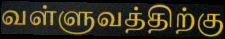
வள்ளுவத்திற்கு